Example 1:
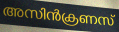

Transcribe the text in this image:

അസിൻക്രണസ്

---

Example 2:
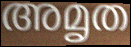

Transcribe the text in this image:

അമൃത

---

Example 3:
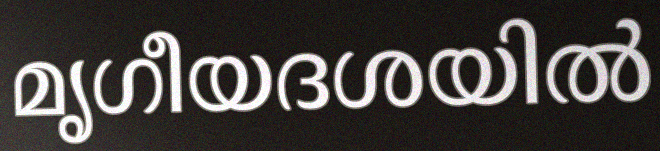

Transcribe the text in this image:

മൃഗീയദശയിൽ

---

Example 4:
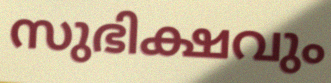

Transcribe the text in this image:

സുഭിക്ഷവും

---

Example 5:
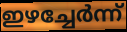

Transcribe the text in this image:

ഇഴച്ചേർന്ന്